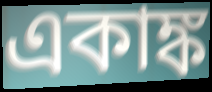
একাঙ্ক